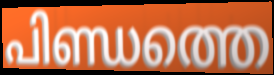
പിണ്ഡത്തെ